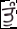
ਤੁੰ